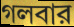
গলবার